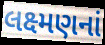
લક્ષ્મણનાં